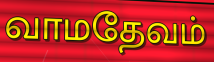
வாமதேவம்